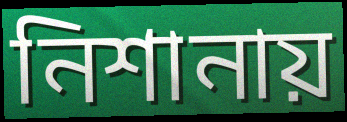
নিশানায়